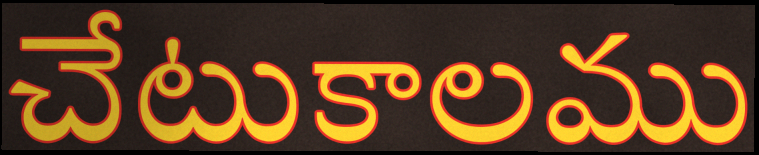
చేటుకాలము